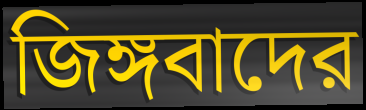
জিঙ্গবাদের